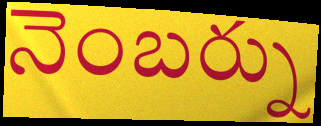
నెంబర్ను